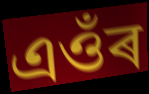
এওঁৰ